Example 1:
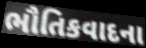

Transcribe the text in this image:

ભૌતિકવાદના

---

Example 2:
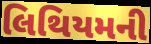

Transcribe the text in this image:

લિથિયમની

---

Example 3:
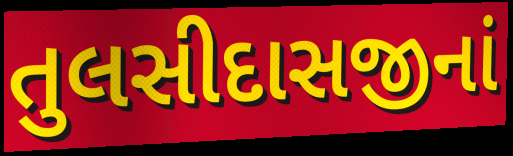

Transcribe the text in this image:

તુલસીદાસજીનાં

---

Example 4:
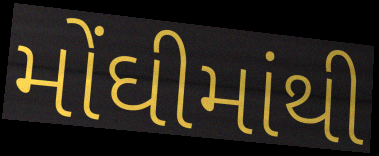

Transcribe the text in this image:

મોંઘીમાંથી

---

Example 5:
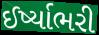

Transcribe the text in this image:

ઈર્ષ્યાભરી